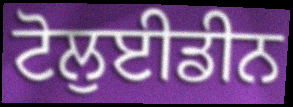
ਟੋਲੁਈਡੀਨ